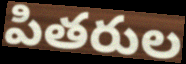
పితరుల